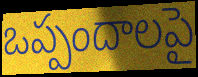
ఒప్పందాలపై